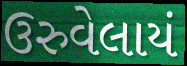
ઉરુવેલાયં